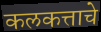
कलकत्ताचे